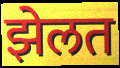
झेलत